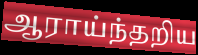
ஆராய்ந்தறிய